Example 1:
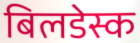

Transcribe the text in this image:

बिलडेस्क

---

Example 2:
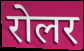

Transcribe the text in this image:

रोलर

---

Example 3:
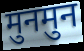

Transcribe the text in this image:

मुनमुन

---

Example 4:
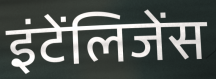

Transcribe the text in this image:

इंटेंलिजेंस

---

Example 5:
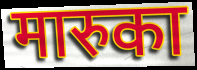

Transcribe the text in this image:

मारुका